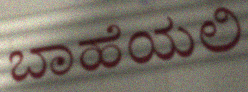
ಬಾಹೆಯಲಿ